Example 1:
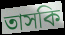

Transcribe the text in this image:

তাসকি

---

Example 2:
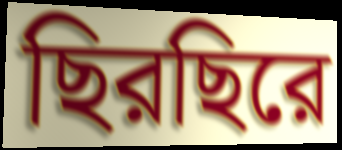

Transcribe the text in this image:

ছিরছিরে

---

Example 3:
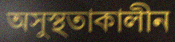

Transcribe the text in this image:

অসুস্থতাকালীন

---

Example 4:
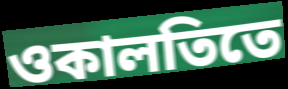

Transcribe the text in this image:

ওকালতিতে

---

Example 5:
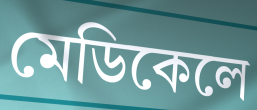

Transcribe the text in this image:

মেডিকেলে